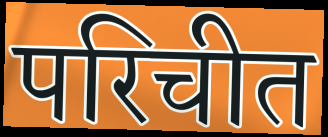
परिचीत